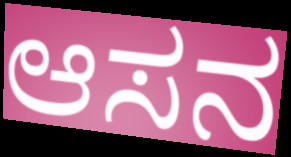
ಆಸನ